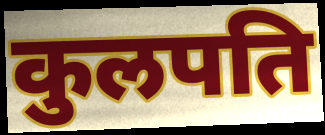
कुलपति